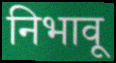
निभावू